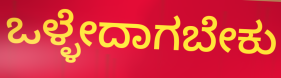
ಒಳ್ಳೇದಾಗಬೇಕು